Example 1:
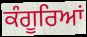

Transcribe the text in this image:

ਕੰਗੂਰਿਆਂ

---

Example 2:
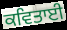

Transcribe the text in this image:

ਕਵਿਤਾਈ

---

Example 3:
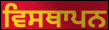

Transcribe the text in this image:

ਵਿਸਥਾਪਨ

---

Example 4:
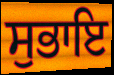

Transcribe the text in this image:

ਸੁਭਾਇ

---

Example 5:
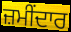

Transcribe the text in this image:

ਜ਼ਮੀਂਦਾਰ